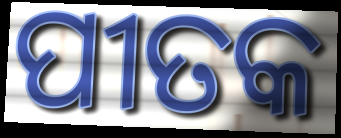
ପୀତକ